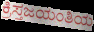
ಕ್ರಿಸ್ತಜಯಂತಿಯ